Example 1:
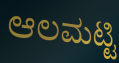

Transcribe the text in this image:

ಆಲಮಟ್ಟಿ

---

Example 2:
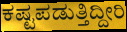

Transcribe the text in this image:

ಕಷ್ಟಪಡುತ್ತಿದ್ದೀರಿ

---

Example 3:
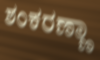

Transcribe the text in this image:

ಶಂಕರಣ್ಣಾ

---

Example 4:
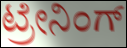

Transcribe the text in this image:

ಟ್ರೇನಿಂಗ್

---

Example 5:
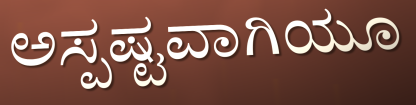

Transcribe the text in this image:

ಅಸ್ಪಷ್ಟವಾಗಿಯೂ